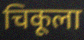
चिकूला